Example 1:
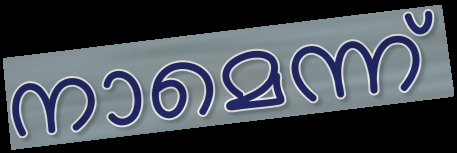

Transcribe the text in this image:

നാമെന്ന്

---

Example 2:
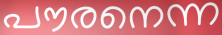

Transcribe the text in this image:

പൗരനെന്ന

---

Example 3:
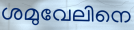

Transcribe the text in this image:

ശമുവേലിനെ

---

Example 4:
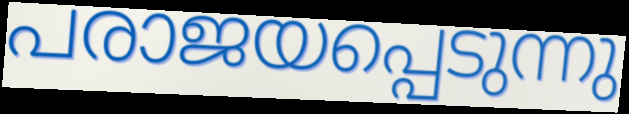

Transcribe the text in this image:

പരാജയപ്പെടുന്നു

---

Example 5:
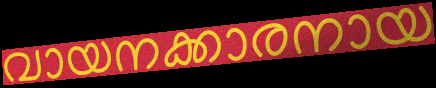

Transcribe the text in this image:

വായനക്കാരനായ